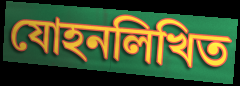
যোহনলিখিত